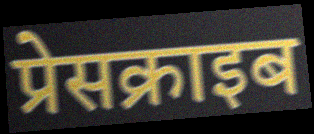
प्रेसक्राइब